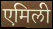
एमिली